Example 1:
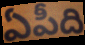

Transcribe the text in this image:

ఏపీది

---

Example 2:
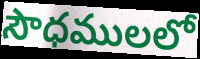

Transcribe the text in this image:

సౌధములలో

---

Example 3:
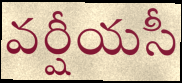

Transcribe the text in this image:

వర్షీయసీ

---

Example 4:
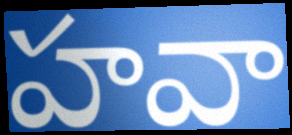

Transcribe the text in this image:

హవా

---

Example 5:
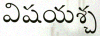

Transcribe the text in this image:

విషయశ్చ